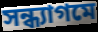
সন্ধ্যাগমে